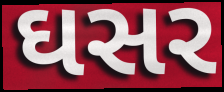
ઘસર